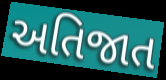
અતિજાત